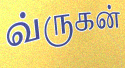
வ்ருகன்